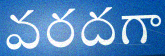
వరదగా